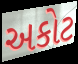
અકોટ